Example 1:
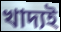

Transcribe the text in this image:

খাদ্যই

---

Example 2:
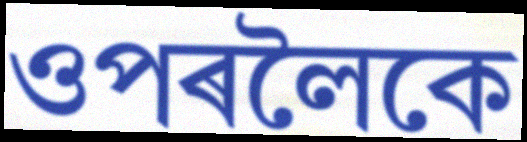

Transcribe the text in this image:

ওপৰলৈকে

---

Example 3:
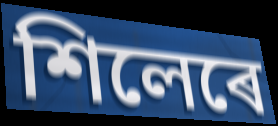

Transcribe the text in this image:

শিলেৰে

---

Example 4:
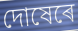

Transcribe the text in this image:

দোষেৰে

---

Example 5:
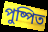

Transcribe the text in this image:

পুষ্পিত